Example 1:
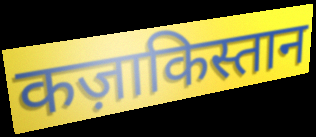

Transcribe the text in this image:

कज़ाकिस्तान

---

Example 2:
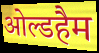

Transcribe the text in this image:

ओल्डहैम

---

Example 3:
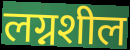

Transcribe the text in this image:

लग्नशील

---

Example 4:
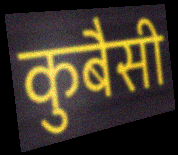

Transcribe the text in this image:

कुबैसी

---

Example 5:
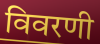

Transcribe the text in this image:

विवरणी